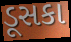
ડૂસકા